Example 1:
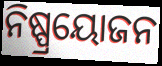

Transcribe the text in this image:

ନିଷ୍ପ୍ରୟୋଜନ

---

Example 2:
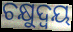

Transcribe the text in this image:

ଚକ୍ଷୁଦ୍ୱୟ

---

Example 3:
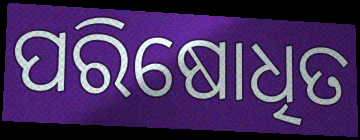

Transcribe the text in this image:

ପରିଷୋଧିତ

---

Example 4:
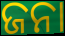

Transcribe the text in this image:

ଜନା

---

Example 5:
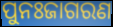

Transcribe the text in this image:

ପୁନଃଜାଗରଣ